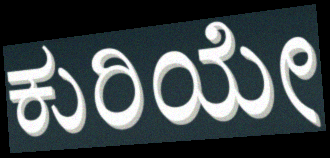
ಕುರಿಯೇ